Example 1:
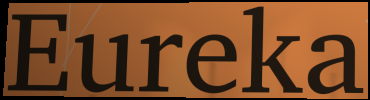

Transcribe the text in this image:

Eureka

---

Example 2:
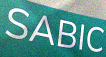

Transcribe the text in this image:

SABIC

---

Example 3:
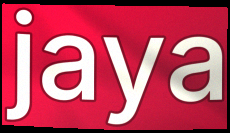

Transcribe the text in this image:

jaya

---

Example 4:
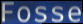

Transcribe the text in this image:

Fosse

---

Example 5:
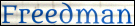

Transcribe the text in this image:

Freedman